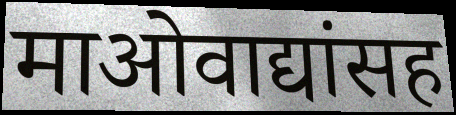
माओवाद्यांसह